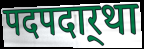
पदपदार्था